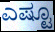
ಎಷ್ಟೂ